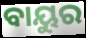
ବାୟୁର